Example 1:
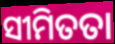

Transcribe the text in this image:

ସୀମିତତା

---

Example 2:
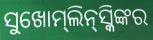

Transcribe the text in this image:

ସୁଖୋମ୍‌ଲିନ୍‌ସ୍କିଙ୍କର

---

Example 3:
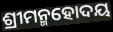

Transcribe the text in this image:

ଶ୍ରୀମନ୍ମହୋଦୟ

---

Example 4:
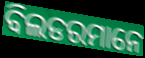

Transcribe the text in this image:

ବିଲଡରମାନେ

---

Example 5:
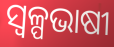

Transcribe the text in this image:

ସ୍ୱଳ୍ପଭାଷୀ